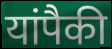
यांपैकी